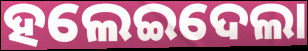
ହଲେଇଦେଲା